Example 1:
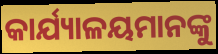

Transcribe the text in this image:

କାର୍ଯ୍ୟାଳୟମାନଙ୍କୁ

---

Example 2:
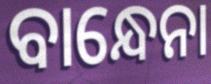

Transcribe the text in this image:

ବାନ୍ଧେନା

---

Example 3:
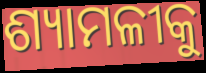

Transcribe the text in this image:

ଶ୍ୟାମଳୀକୁ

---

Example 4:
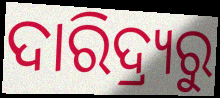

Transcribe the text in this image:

ଦାରିଦ୍ର୍ୟରୁ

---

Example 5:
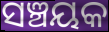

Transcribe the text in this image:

ସଞ୍ଚୟକ